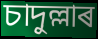
চাদুল্লাৰ